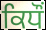
ਕਿਧੌਂ